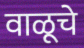
वाळूचे